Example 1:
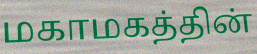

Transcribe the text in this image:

மகாமகத்தின்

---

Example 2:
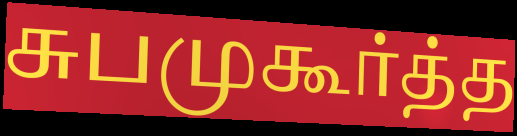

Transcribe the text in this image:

சுபமுகூர்த்த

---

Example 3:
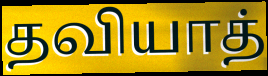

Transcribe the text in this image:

தவியாத்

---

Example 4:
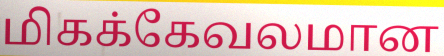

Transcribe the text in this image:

மிகக்கேவலமான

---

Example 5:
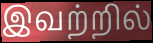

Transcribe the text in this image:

இவற்றில்